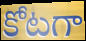
కోటగా